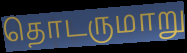
தொடருமாறு